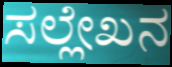
ಸಲ್ಲೇಖನ